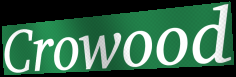
Crowood